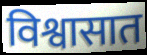
विश्वासात